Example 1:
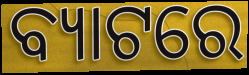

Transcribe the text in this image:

ବ୍ୟାଟରେ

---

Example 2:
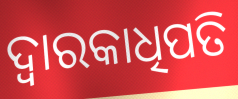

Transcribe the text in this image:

ଦ୍ୱାରକାଧିପତି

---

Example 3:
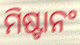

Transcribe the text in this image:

ମିଷ୍ଟାନଂ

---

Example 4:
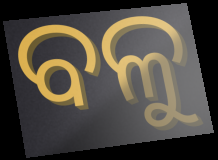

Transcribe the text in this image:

ବଳୁ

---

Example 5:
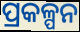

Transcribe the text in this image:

ପ୍ରକଳ୍ପନ